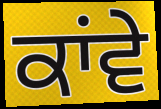
ਕਾਂਵੇ